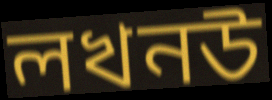
লখনউ